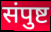
संपुष्ट